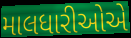
માલધારીઓએ